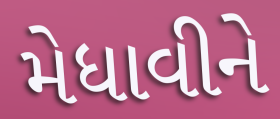
મેધાવીને